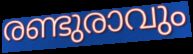
രണ്ടുരാവും